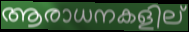
ആരാധനകളില്